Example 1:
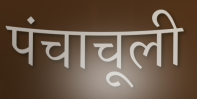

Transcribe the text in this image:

पंचाचूली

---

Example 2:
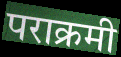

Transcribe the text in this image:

पराक्रमी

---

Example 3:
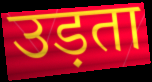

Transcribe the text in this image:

उड़ता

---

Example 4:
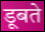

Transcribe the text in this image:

डूबते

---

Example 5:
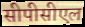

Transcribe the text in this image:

सीपीसीएल